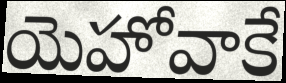
యెహోవాకే